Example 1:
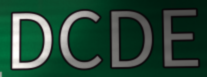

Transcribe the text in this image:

DCDE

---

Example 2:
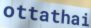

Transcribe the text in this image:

ottathai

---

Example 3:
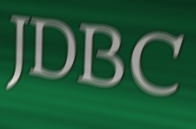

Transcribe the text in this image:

JDBC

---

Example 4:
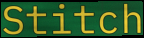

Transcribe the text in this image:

Stitch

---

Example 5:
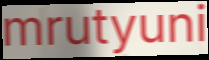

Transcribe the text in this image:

mrutyuni